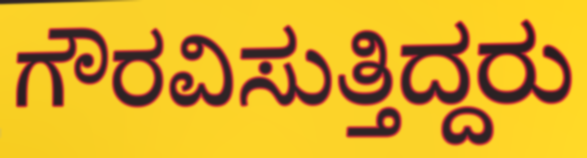
ಗೌರವಿಸುತ್ತಿದ್ದರು